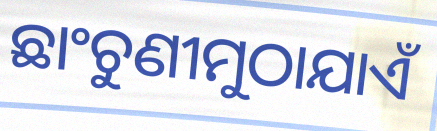
ଛାଂଚୁଣୀମୁଠାଯାଏଁ